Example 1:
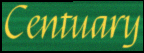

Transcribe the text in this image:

Centuary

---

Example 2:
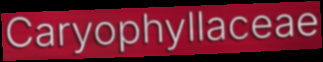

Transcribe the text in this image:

Caryophyllaceae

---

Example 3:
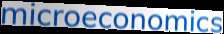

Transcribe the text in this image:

microeconomics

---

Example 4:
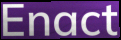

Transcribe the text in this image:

Enact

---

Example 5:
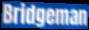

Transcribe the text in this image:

Bridgeman